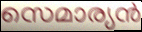
സെമാര്യൻ